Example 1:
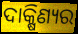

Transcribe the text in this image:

ଦାକ୍ଷିଣ୍ୟର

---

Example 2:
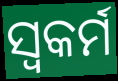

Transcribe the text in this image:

ସ୍ଵକର୍ମ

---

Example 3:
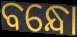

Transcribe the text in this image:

ବନ୍ଧୋ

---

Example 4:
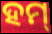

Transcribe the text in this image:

ହମ୍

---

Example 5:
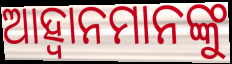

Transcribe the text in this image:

ଆହ୍ୱାନମାନଙ୍କୁ